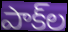
పాక్‌ల